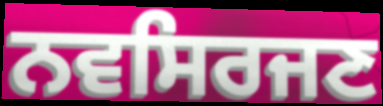
ਨਵਸਿਰਜਣ